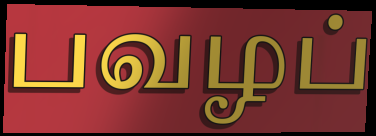
பவழப்